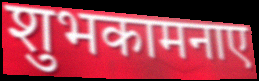
शुभकामनाए